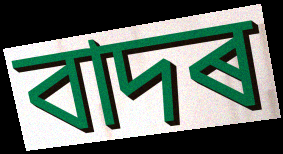
বাদৰ